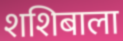
शशिबाला